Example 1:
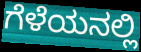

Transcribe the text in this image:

ಗೆಳೆಯನಲ್ಲಿ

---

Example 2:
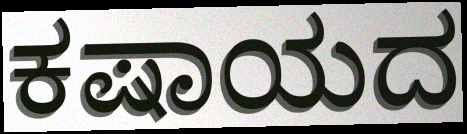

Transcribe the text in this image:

ಕಷಾಯದ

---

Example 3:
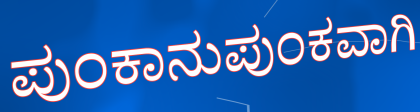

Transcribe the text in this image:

ಪುಂಕಾನುಪುಂಕವಾಗಿ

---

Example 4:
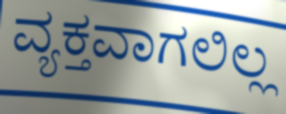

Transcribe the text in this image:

ವ್ಯಕ್ತವಾಗಲಿಲ್ಲ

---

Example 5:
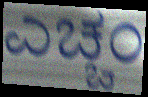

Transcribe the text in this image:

ಎಚ್ಚಂ